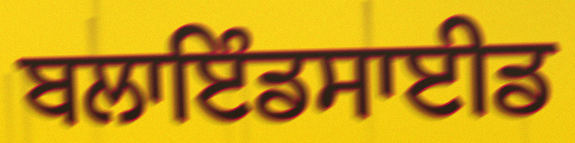
ਬਲਾਇੰਡਸਾਈਡ